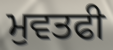
ਮੁਵਤਫੀ